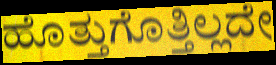
ಹೊತ್ತುಗೊತ್ತಿಲ್ಲದೇ